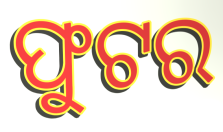
ଫୁଟର